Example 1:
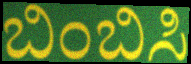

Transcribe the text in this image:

ಬಿಂಬಿಸಿ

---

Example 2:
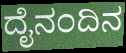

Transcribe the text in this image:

ದೈನಂದಿನ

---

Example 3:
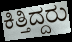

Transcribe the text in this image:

ಕಿತ್ತಿದ್ದರು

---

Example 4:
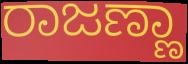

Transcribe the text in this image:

ರಾಜಣ್ಣಾ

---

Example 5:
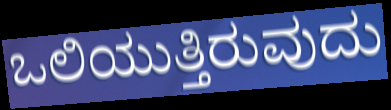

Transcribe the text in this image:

ಒಲಿಯುತ್ತಿರುವುದು